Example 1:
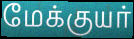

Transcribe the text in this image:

மேக்குயர்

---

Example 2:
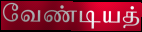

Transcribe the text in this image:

வேண்டியத்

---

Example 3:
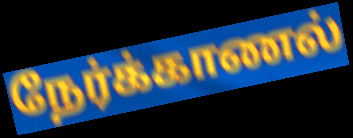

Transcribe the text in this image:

நேர்க்காணல்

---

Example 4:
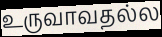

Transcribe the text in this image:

உருவாவதல்ல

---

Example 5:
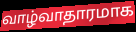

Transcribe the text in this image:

வாழ்வாதாரமாக